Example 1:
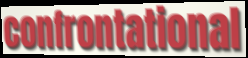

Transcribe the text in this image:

confrontational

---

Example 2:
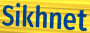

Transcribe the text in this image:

Sikhnet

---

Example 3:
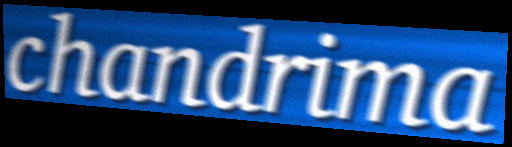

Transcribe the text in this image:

chandrima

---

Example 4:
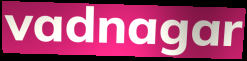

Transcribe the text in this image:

vadnagar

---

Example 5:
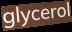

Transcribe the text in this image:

glycerol